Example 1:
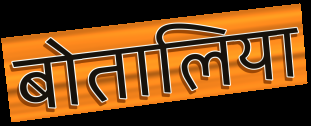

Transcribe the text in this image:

बोतालिया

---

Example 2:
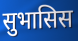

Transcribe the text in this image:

सुभासिस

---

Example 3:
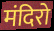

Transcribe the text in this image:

मंदिरो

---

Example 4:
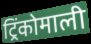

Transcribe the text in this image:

ट्रिंकोमाली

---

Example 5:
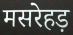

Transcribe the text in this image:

मसरेहड़